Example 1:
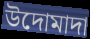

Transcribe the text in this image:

উদোমাদা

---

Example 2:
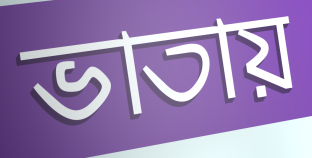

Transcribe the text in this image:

ভাতায়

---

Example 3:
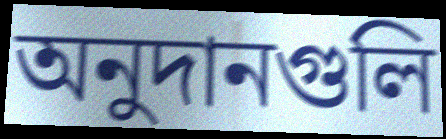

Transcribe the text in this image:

অনুদানগুলি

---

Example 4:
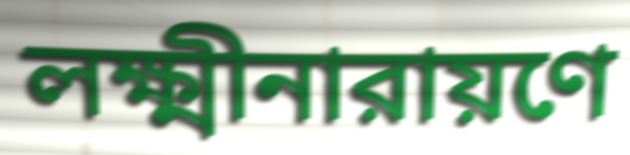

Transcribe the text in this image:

লক্ষ্মীনারায়ণে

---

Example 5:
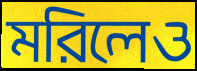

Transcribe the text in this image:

মরিলেও